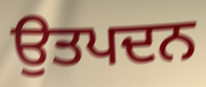
ਉਤਪਦਨ